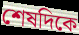
শেষদিকে